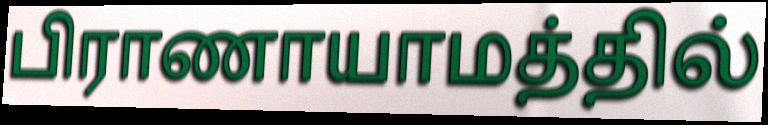
பிராணாயாமத்தில்